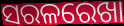
ସରଳରେଖା